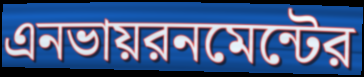
এনভায়রনমেন্টের